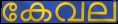
കേവല